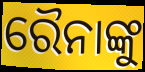
ରୈନାଙ୍କୁ